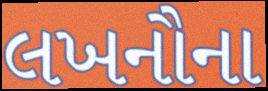
લખનૌના